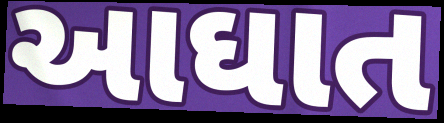
આઘાત